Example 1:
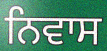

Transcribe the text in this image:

ਨਿਵਾਸ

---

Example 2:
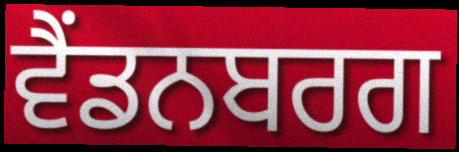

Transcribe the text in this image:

ਵੈਂਡਨਬਰਗ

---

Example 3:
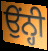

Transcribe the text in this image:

ਉਂਨ੍ਹੀ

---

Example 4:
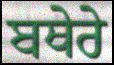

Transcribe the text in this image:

ਬਥੇਰੇ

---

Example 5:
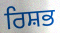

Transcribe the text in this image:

ਰਿਸ਼ਭ